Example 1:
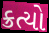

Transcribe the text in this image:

ક્રત્યો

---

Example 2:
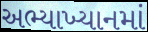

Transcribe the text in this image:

અભ્યાખ્યાનમાં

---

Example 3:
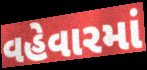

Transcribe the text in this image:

વહેવારમાં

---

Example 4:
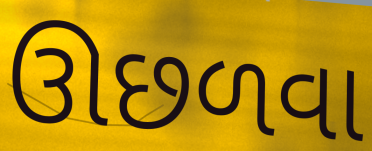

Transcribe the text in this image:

ઊછળવા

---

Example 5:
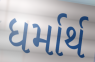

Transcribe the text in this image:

ધર્માર્થ